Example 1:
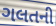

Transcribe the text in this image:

ગલતની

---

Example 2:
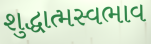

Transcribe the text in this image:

શુદ્ધાત્મસ્વભાવ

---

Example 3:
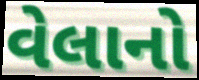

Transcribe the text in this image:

વેલાનો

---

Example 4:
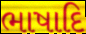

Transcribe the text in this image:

ભાષાદિ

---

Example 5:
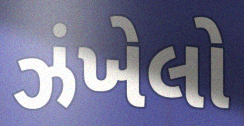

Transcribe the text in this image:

ઝંખેલો